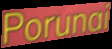
Porunai